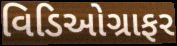
વિડિઓગ્રાફર